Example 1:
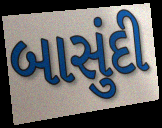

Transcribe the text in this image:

બાસુંદી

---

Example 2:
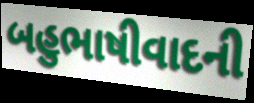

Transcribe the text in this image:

બહુભાષીવાદની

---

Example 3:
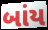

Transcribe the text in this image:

બાંય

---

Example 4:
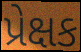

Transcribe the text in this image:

પ્રેક્ષક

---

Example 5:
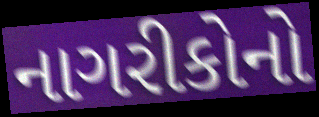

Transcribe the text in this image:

નાગરીકોનો